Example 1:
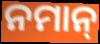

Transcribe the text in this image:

ନମାନ୍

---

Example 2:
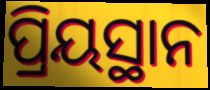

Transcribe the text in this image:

ପ୍ରିୟସ୍ଥାନ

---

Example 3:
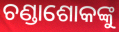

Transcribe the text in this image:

ଚଣ୍ଡାଶୋକଙ୍କୁ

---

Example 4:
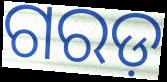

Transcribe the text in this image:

ଗରଡ଼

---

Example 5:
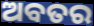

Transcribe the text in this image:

ଅବତର